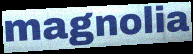
magnolia